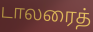
டாலரைத்